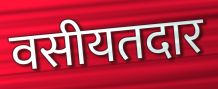
वसीयतदार